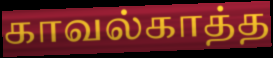
காவல்காத்த